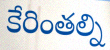
కేరింతల్ని